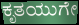
ಕೃತಯುಗೇ